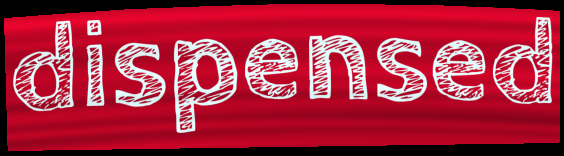
dispensed